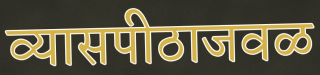
व्यासपीठाजवळ